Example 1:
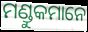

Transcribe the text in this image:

ମଣ୍ଡୁକମାନେ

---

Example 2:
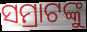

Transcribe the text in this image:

ସମ୍ରାଟଙ୍କୁ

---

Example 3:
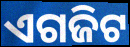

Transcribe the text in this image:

ଏଗଜିଟ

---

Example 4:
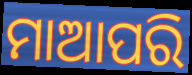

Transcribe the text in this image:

ମାଆପରି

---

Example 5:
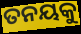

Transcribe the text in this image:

ତନୟକୁ